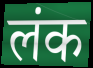
लंक